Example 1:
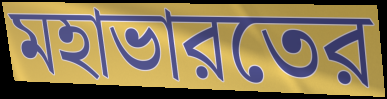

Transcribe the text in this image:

মহাভারতের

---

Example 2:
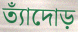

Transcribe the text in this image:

ত্যাঁদোড়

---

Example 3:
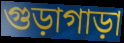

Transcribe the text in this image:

গুড়াগাড়া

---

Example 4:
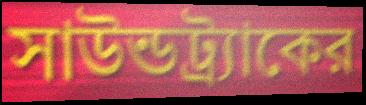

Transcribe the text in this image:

সাউন্ডট্র্যাকের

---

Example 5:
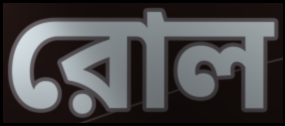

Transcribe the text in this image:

রোল